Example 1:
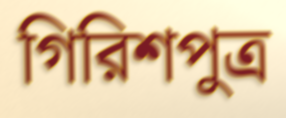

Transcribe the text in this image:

গিরিশপুত্র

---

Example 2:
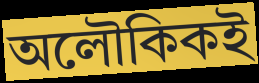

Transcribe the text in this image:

অলৌকিকই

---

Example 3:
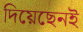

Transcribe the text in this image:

দিয়েছেনই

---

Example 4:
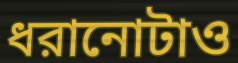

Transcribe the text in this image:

ধরানোটাও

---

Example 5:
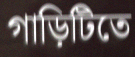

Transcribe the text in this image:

গাড়িটিতে